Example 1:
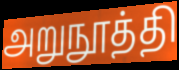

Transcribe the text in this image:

அறுநூத்தி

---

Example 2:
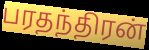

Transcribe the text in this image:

பரதந்திரன்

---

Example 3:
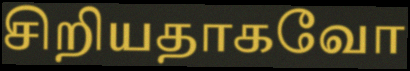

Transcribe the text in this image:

சிறியதாகவோ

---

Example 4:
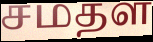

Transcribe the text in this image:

சமதள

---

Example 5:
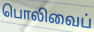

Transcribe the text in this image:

பொலிவைப்